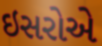
ઇસરોએ